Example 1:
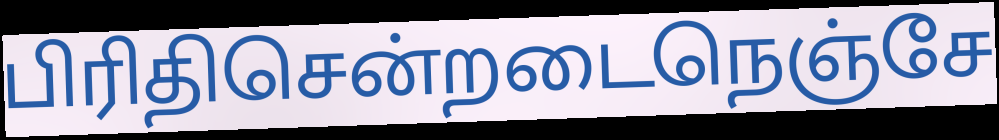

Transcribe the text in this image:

பிரிதிசென்றடைநெஞ்சே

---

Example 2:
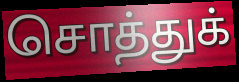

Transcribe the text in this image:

சொத்துக்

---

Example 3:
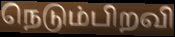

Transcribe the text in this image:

நெடும்பிறவி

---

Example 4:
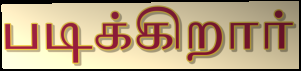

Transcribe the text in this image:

படிக்கிறார்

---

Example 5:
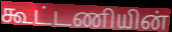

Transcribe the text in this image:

கூட்டணியின்